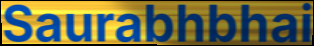
Saurabhbhai